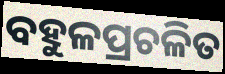
ବହୁଳପ୍ରଚଳିତ